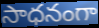
సాధనంగా